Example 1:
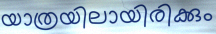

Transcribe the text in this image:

യാത്രയിലായിരിക്കും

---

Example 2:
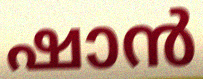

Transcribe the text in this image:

ഷാൻ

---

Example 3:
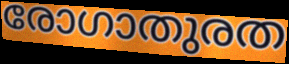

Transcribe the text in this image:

രോഗാതുരത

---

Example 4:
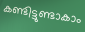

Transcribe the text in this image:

കണ്ടിട്ടുണ്ടാകാം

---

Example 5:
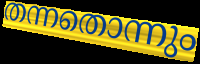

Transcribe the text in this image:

തന്നതൊന്നും